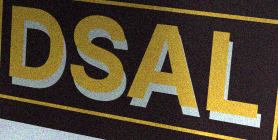
DSAL